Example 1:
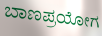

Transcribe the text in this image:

ಬಾಣಪ್ರಯೋಗ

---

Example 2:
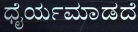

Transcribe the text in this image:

ಧೈರ್ಯಮಾಡದೆ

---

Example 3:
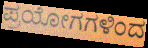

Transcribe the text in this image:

ಪ್ರಯೋಗಗಳಿಂದ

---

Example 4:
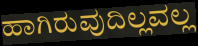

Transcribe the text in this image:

ಹಾಗಿರುವುದಿಲ್ಲವಲ್ಲ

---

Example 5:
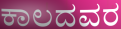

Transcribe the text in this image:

ಕಾಲದವರ